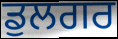
ਡੁਲਗਰ